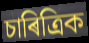
চাৰিত্ৰিক